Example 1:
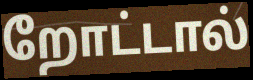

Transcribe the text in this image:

றோட்டால்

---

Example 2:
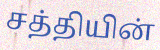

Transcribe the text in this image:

சத்தியின்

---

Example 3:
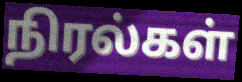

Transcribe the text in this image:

நிரல்கள்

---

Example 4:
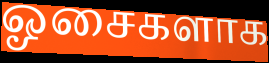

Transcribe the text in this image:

ஓசைகளாக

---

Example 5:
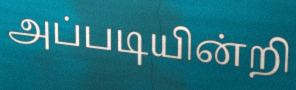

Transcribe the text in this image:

அப்படியின்றி